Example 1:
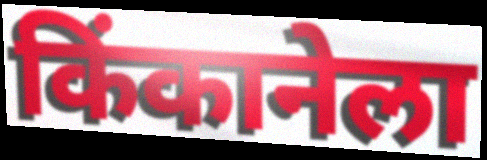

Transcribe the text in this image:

किंकानेला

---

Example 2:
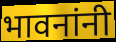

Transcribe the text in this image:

भावनांनी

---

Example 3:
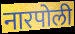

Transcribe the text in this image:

नारपोली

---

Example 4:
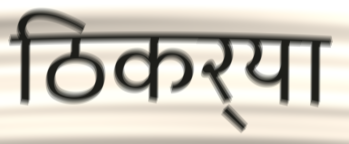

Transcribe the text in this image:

ठिकर्‍या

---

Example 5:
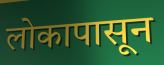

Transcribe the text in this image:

लोकापासून